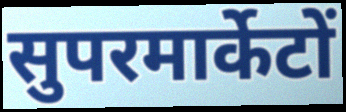
सुपरमार्केटों